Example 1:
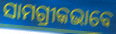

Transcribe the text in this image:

ସାମଗ୍ରୀକଭାବେ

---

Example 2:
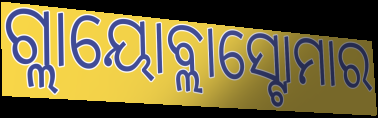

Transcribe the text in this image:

ଗ୍ଲାୟୋବ୍ଲାସ୍ଟୋମାର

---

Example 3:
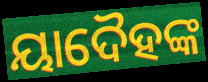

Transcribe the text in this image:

ୟାଦୈହଙ୍କ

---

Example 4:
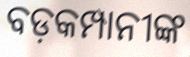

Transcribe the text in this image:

ବଡ଼କମ୍ପାନୀଙ୍କ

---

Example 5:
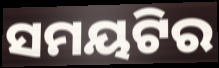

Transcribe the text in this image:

ସମୟଟିର